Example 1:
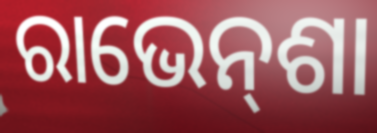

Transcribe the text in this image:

ରାଭେନ୍‌ଶା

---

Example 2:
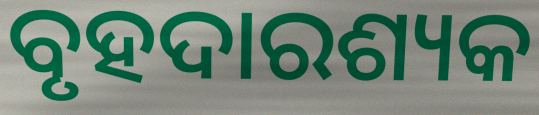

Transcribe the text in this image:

ବୃହଦାରଶ୍ୟକ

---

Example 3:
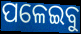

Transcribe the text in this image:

ପଳେଇବୁ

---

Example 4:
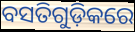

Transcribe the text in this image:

ବସତିଗୁଡ଼ିକରେ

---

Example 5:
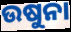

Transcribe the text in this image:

ଉଷୁନା